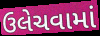
ઉલેચવામાં